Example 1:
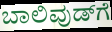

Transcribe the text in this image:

ಬಾಲಿವುಡ್‌ಗೆ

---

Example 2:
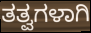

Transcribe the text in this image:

ತತ್ವಗಳಾಗಿ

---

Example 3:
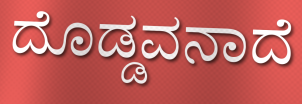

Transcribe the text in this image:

ದೊಡ್ಡವನಾದೆ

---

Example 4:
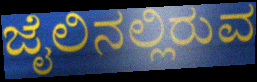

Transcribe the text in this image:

ಜೈಲಿನಲ್ಲಿರುವ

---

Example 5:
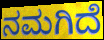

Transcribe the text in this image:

ನಮಗಿದೆ